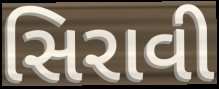
સિરાવી